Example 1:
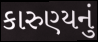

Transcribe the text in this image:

કારુણ્યનું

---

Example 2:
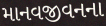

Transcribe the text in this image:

માનવજીવનના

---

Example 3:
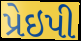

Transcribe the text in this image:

પ્રેઇપી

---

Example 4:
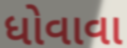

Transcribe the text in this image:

ધોવાવા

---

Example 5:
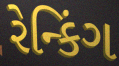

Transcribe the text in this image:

રેન્કિંગ